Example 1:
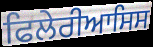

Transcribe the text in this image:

ਫਿਲੇਰੀਆਸਿਸ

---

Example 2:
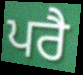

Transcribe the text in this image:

ਪਰੈ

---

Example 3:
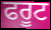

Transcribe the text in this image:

ਫਰੂਟ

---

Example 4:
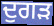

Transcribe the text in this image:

ਦੁਗੜ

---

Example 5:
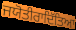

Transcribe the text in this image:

ਜਯੋਤੀਰਾਦਿੱਤਿਆ